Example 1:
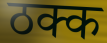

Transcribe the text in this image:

ठक्क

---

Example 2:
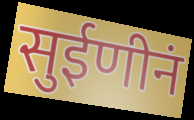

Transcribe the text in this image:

सुईणीनं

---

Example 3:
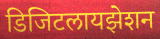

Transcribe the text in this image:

डिजिटलायझेशन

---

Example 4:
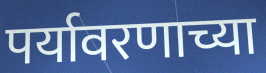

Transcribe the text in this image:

पर्यावरणाच्या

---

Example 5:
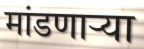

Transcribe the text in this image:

मांडणार्‍या